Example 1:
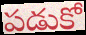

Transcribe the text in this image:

పడుకో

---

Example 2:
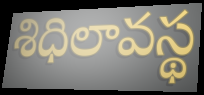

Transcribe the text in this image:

శిధిలావస్థ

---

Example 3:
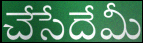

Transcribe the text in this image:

చేసేదేమీ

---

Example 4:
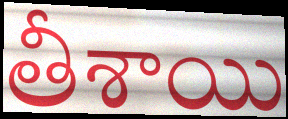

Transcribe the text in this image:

తీశాయి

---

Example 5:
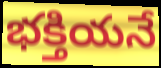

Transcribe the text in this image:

భక్తియనే